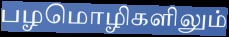
பழமொழிகளிலும்